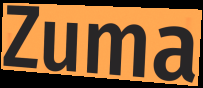
Zuma